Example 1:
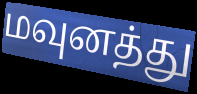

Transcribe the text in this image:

மவுனத்து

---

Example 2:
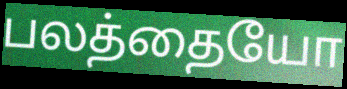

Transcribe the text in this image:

பலத்தையோ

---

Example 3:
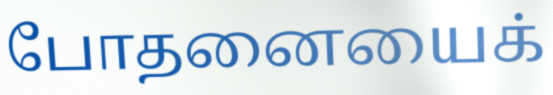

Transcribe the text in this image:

போதனையைக்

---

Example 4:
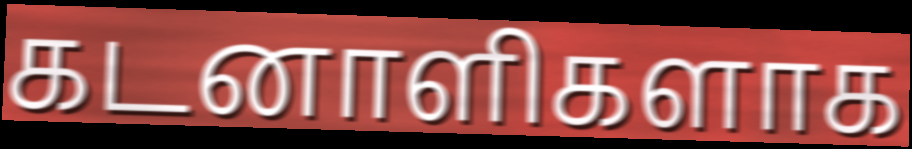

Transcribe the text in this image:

கடனாளிகளாக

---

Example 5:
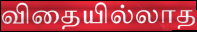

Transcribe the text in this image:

விதையில்லாத